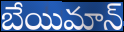
బేయిమాన్